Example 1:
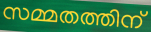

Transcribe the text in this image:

സമ്മതത്തിന്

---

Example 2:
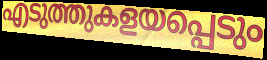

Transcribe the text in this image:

എടുത്തുകളയപ്പെടും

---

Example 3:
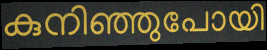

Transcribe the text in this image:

കുനിഞ്ഞുപോയി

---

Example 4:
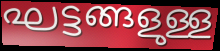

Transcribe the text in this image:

ഘട്ടങ്ങളുള്ള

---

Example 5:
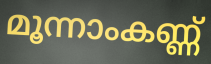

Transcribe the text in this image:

മൂന്നാംകണ്ണ്